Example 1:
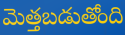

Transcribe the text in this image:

మెత్తబడుతోంది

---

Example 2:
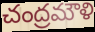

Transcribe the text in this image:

చంద్రమౌళి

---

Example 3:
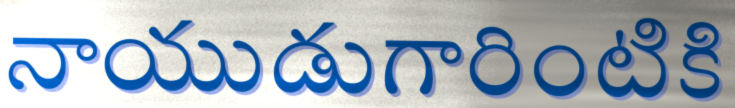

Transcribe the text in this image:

నాయుడుగారింటికి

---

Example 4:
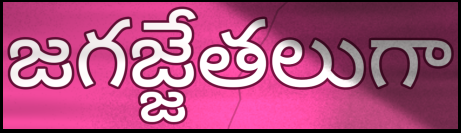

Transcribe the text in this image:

జగజ్జేతలుగా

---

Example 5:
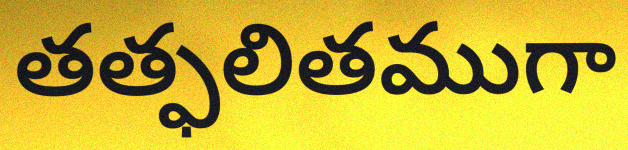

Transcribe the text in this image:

తత్ఫలితముగా